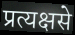
प्रत्यक्षसे